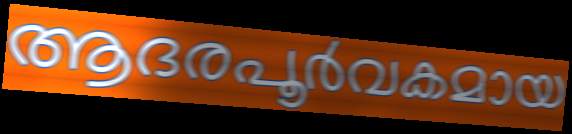
ആദരപൂർവകമായ